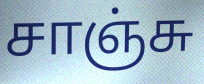
சாஞ்சு